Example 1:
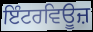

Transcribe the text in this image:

ਇੰਟਰਵਿਊਜ਼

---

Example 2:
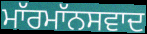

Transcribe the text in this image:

ਮਾੱਰਮਾੱਨਸਵਾਦ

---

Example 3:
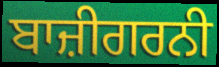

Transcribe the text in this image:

ਬਾਜ਼ੀਗਰਨੀ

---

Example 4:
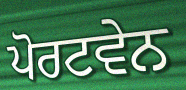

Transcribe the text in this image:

ਪੋਰਟਵੇਨ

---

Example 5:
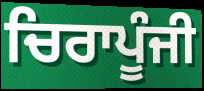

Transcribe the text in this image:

ਚਿਰਾਪੂੰਜੀ